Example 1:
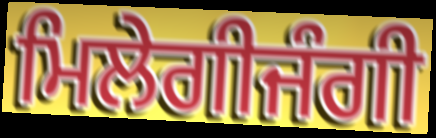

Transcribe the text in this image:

ਮਿਲੇਗੀਜੰਗੀ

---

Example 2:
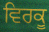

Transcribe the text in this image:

ਵਿਰਕੂ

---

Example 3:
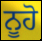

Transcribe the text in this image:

ਨੂਹੋ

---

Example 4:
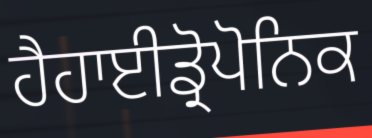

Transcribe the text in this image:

ਹੈਹਾਈਡ੍ਰੋਪੋਨਿਕ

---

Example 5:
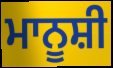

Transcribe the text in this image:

ਮਾਨੂਸ਼ੀ